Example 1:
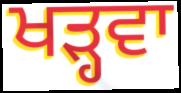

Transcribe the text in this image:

ਖੜ੍ਹਵਾ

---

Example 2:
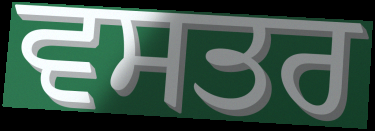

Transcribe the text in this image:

ਵਸਤਰ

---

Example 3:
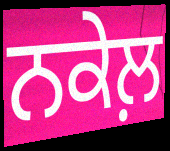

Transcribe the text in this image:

ਨਕੇਲ਼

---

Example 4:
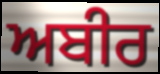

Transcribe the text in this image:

ਅਬੀਰ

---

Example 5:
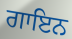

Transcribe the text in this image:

ਗਾਇਨ